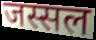
जस्सल